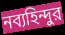
নব্যহিন্দুর